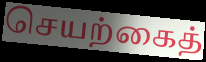
செயற்கைத்